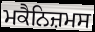
ਮਕੈਨਿਜ਼ਮਸ